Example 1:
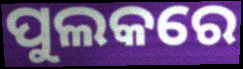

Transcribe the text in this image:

ପୁଲକରେ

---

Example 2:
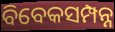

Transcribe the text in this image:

ବିବେକସମ୍ପନ୍ନ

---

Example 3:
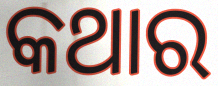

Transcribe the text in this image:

କଥାର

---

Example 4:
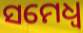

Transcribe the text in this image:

ସମେଧ୍ୱ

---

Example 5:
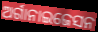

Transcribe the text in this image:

ଅର୍ଗାନାଇଜେସନ